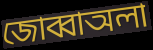
জোব্বাঅলা